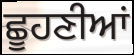
ਛੂਹਣੀਆਂ